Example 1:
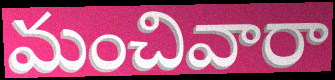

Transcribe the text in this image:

మంచివారా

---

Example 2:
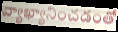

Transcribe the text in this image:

వ్యాఖ్యానించడంతో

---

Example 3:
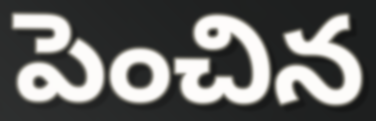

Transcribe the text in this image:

పెంచిన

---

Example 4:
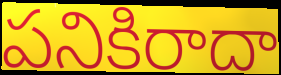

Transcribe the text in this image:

పనికిరాదా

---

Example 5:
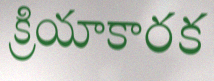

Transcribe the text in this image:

క్రియాకారక